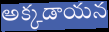
అక్కడాయన